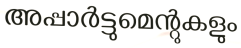
അപ്പാർട്ടുമെന്റുകളും